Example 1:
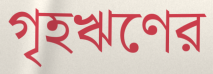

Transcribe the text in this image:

গৃহঋণের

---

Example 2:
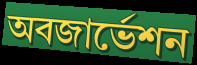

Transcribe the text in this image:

অবজার্ভেশন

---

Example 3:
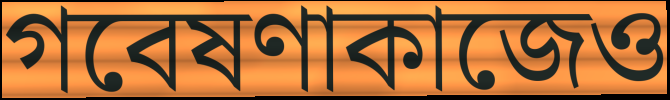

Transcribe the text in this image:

গবেষণাকাজেও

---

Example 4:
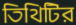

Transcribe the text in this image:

তিথিটির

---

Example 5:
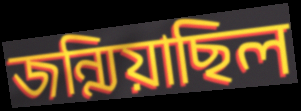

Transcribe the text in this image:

জন্মিয়াছিল